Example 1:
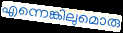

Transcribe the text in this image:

എന്നെങ്കിലുമൊരു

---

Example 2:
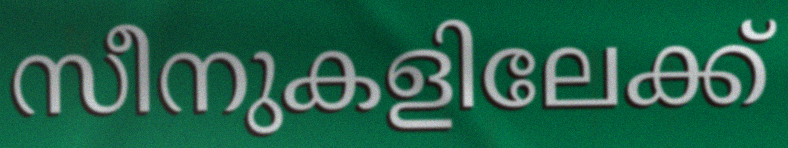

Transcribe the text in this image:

സീനുകളിലേക്ക്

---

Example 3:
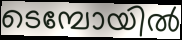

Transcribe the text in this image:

ടെമ്പോയിൽ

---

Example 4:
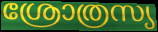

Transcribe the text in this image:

ശ്രോത്രസ്യ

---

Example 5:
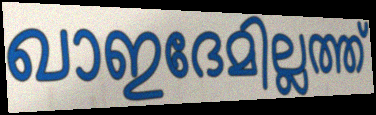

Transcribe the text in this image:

ഖാഇദേമില്ലത്ത്